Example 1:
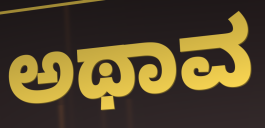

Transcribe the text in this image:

ಅಥಾವ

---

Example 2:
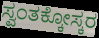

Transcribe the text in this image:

ಸ್ವಂತಕ್ಕೋಸ್ಕರ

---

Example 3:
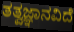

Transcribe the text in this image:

ತತ್ವಜ್ಞಾನವಿದೆ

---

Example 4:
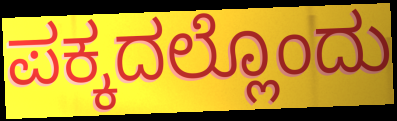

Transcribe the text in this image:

ಪಕ್ಕದಲ್ಲೊಂದು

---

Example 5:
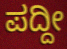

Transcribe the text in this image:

ಪದ್ದೀ